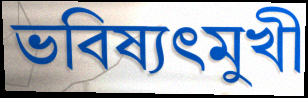
ভবিষ্যৎমুখী